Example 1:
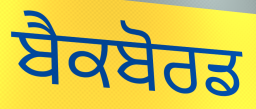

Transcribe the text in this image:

ਬੈਕਬੋਰਡ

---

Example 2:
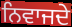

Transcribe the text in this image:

ਨਿਵਾਜਦੇ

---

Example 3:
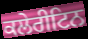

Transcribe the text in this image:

ਕਲੇਰੀਟਿਨ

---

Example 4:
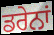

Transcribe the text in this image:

ਡਰੇਨਾਂ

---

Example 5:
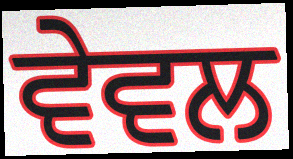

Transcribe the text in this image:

ਵੇਵਲ